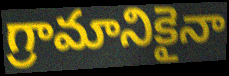
గ్రామానికైనా